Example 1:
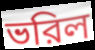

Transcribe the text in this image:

ভরিল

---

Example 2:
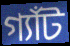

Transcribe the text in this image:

গ্যাঁট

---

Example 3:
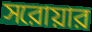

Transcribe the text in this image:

সরোয়ার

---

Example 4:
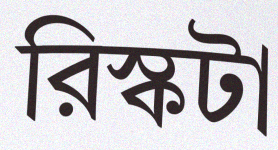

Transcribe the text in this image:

রিস্কটা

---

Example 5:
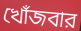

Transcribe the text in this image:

খোঁজবার